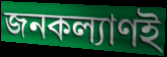
জনকল্যাণই